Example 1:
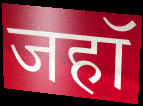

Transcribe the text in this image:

जहॉ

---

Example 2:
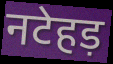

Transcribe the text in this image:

नटेहड़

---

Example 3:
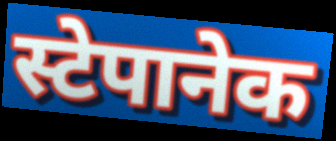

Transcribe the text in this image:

स्टेपानेक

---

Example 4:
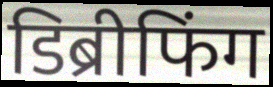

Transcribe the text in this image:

डिब्रीफिंग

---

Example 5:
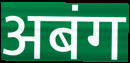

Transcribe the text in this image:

अबंग